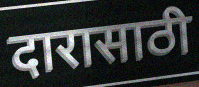
दारासाठी